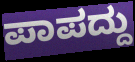
ಪಾಪದ್ದು